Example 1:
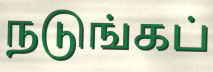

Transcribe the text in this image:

நடுங்கப்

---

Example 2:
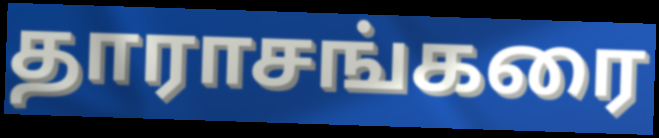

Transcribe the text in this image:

தாராசங்கரை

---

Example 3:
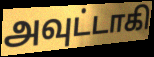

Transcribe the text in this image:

அவுட்டாகி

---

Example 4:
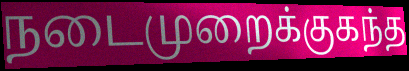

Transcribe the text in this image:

நடைமுறைக்குகந்த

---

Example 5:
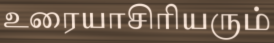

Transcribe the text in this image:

உரையாசிரியரும்